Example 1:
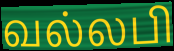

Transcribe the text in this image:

வல்லபி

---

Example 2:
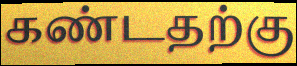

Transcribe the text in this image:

கண்டதற்கு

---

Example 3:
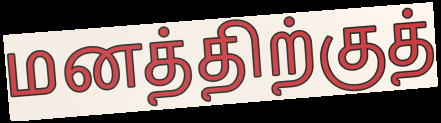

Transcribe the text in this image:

மனத்திற்குத்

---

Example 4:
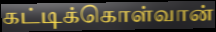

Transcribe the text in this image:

கட்டிக்கொள்வான்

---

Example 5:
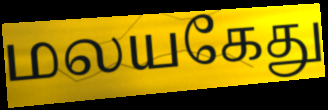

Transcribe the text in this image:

மலயகேது